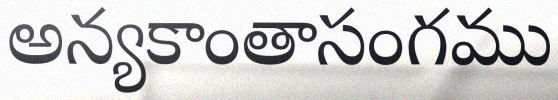
అన్యకాంతాసంగము